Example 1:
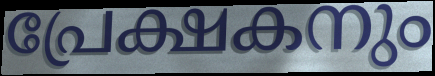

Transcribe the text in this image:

പ്രേക്ഷകനും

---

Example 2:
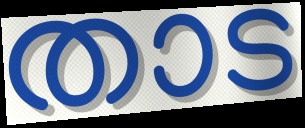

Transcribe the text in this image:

താട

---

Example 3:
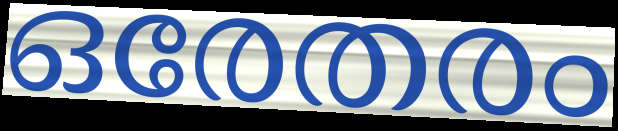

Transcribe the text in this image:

ഒരേതരം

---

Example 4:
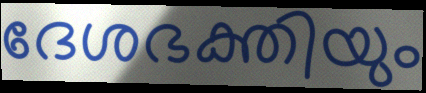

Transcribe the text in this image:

ദേശഭക്തിയും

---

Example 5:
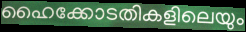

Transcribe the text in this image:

ഹൈക്കോടതികളിലെയും